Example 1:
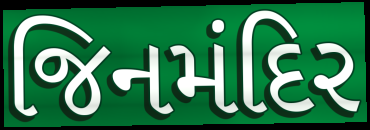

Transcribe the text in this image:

જિનમંદિર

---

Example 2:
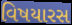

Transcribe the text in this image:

વિષયારસ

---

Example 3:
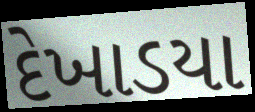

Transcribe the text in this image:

દેખાડયા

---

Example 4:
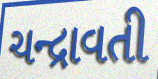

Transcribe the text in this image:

ચન્દ્રાવતી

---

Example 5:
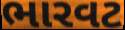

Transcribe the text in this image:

ભારવટ